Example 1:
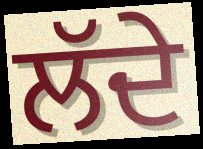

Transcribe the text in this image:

ਲੱਦੇ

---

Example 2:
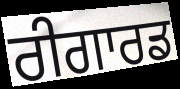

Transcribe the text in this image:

ਰੀਗਾਰਡ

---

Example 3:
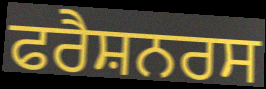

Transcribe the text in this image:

ਫਰੈਸ਼ਨਰਸ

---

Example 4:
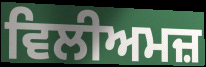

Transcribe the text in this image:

ਵਿਲੀਅਮਜ਼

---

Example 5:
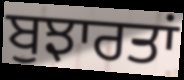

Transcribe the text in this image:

ਬੁਝਾਰਤਾਂ